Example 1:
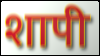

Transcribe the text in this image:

शापी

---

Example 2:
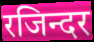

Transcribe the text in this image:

रजिन्दर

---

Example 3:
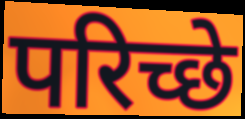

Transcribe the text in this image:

परिच्छे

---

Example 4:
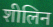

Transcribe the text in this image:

शीलिन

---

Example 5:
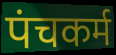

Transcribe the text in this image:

पंचकर्म